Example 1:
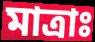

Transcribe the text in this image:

মাত্রাঃ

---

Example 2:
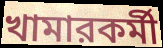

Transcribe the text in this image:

খামারকর্মী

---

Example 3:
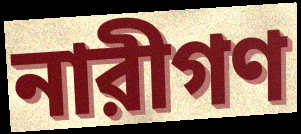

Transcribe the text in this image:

নারীগণ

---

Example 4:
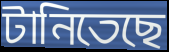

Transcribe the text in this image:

টানিতেছে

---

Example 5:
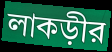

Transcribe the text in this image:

লাকড়ীর